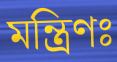
মন্ত্রিণঃ